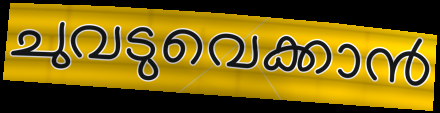
ചുവടുവെക്കാൻ